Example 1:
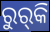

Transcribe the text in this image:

ରୁର୍‍କି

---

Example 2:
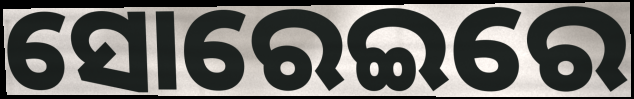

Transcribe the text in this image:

ସୋରେଇରେ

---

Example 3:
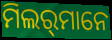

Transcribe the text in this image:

ମିଲର୍‌ମାନେ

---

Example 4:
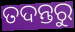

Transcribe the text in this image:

ତଦନ୍ତରୁ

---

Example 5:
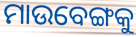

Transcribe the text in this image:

ମାଉବେଙ୍ଗକୁ